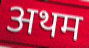
अथम